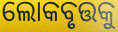
ଲୋକବୃତ୍ତକୁ